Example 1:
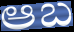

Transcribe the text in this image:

ఆబ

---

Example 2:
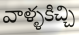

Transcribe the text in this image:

వాళ్ళకిచ్చి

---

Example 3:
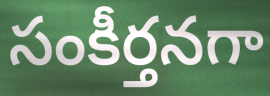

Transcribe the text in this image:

సంకీర్తనగా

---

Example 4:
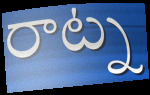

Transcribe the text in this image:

రాట్న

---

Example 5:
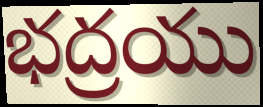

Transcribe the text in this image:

భద్రయు